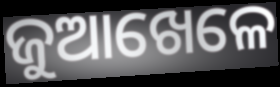
ଜୁଆଖେଳେ